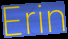
Erin